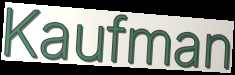
Kaufman